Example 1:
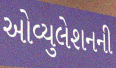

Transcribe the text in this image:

ઓવ્યુલેશનની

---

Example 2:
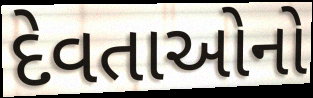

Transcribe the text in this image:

દેવતાઓનો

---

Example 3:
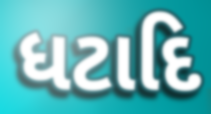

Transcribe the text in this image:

ધટાદિ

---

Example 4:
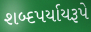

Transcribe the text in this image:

શબ્દપર્યાયરૂપે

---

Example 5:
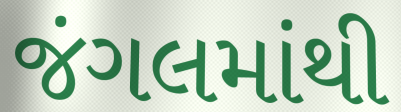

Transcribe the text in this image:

જંગલમાંથી